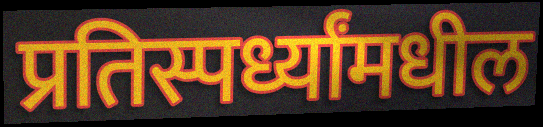
प्रतिस्पर्ध्यांमधील